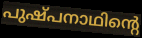
പുഷ്പനാഥിന്റെ